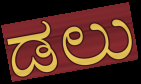
ಡಲು